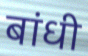
बांधी